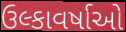
ઉલ્કાવર્ષાઓ